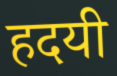
हदयी